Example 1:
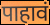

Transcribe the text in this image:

पाहावं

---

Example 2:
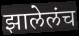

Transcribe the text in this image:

झालेलंच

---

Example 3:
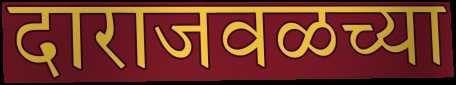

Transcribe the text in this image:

दाराजवळच्या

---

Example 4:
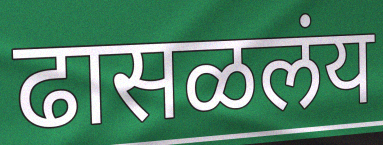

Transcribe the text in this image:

ढासळलंय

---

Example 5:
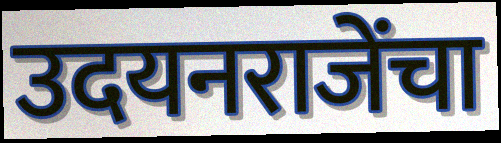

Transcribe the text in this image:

उदयनराजेंचा